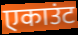
एकाउंट